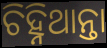
ଚିହ୍ନିଥାନ୍ତା